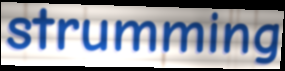
strumming